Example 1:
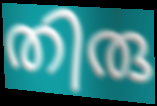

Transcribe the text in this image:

തിരു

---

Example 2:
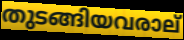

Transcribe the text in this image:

തുടങ്ങിയവരാല്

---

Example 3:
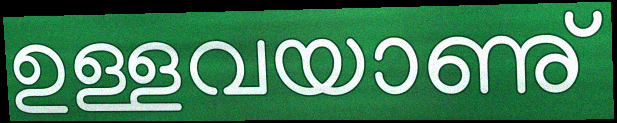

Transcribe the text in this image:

ഉള്ളവയാണു്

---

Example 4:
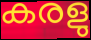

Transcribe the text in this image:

കരളു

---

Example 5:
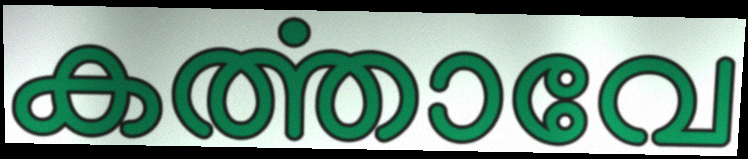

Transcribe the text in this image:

കൎത്താവേ